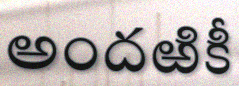
అందఱికీ